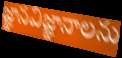
జ్ఞానవిజ్ఞానాలను